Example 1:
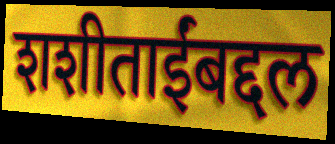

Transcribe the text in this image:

शशीताईंबद्दल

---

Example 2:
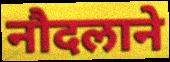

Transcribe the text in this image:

नौदलाने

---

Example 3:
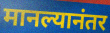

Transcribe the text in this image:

मानल्यानंतर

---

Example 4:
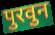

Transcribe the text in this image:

पुरवुन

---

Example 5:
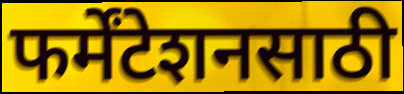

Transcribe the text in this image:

फर्मेंटेशनसाठी